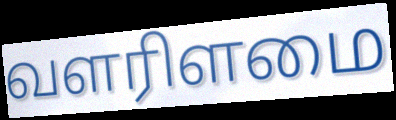
வளரிளமை